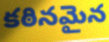
కఠినమైన